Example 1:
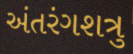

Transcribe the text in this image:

અંતરંગશત્રુ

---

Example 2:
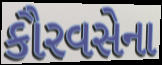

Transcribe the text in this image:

કૌરવસેના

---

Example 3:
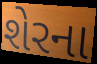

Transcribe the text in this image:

શેરના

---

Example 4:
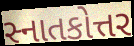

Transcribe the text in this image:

સ્નાતકોત્તર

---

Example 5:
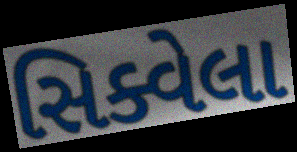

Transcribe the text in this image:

સિક્વેલા